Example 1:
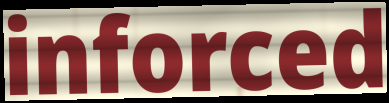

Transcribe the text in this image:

inforced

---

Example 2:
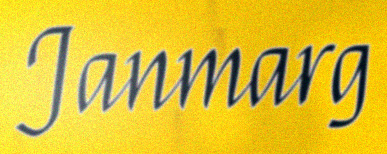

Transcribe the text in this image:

Janmarg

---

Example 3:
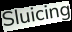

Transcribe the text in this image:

Sluicing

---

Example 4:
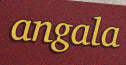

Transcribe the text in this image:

angala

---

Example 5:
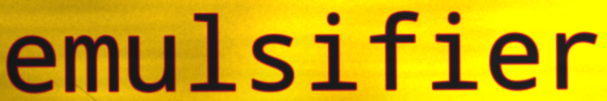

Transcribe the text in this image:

emulsifier